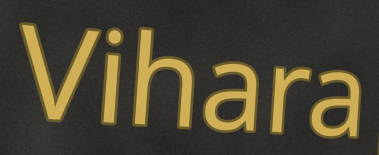
Vihara